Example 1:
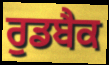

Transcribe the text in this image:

ਰੁਡਬੈਕ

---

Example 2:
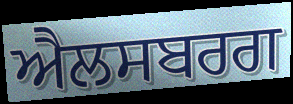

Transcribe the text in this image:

ਐਲਸਬਰਗ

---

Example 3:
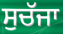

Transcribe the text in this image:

ਸੁਚੱਜਾ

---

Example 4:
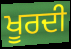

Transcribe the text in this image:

ਖੂਰਦੀ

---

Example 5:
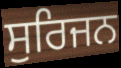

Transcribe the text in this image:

ਸੁਰਿਜਨ